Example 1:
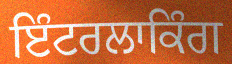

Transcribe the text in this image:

ਇੰਟਰਲਾਕਿੰਗ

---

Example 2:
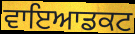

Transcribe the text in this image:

ਵਾਇਆਡਕਟ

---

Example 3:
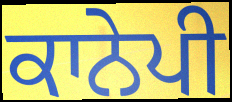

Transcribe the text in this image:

ਕਾਨੇਪੀ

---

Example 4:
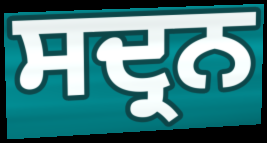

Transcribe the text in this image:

ਸਦ੍ਰਨ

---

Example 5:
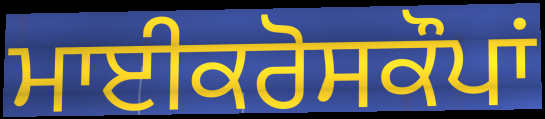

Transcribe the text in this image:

ਮਾਈਕਰੋਸਕੌਪਾਂ